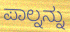
ಪಾಲ್ನನ್ನು